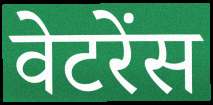
वेटरेंस